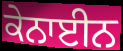
ਕੇਨਾਈਨ